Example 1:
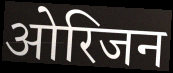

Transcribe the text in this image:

ओरिजन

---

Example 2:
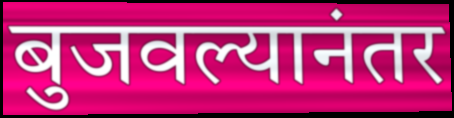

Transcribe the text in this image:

बुजवल्यानंतर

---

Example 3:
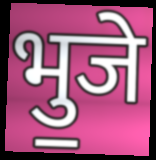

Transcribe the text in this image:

भु॒जे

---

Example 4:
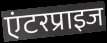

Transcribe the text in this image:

एंटरप्राइज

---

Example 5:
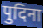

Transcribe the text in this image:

पुदिना